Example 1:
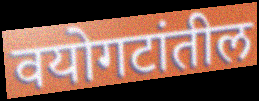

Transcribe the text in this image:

वयोगटांतील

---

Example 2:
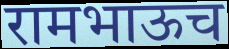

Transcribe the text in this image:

रामभाऊच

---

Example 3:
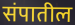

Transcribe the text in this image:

संपातील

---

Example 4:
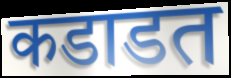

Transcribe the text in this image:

कडाडत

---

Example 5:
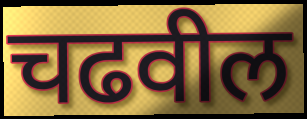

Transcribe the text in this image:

चढवील